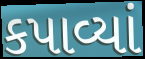
કપાવ્યાં